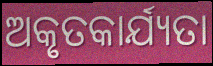
ଅକୃତକାର୍ଯ୍ୟତା